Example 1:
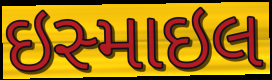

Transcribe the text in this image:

ઇસ્માઇલ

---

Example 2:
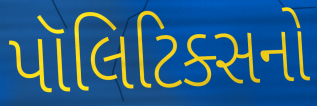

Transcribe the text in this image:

પૉલિટિક્સનો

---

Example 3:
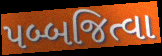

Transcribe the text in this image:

પબ્બજિત્વા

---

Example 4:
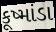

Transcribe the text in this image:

કૂષ્માંડા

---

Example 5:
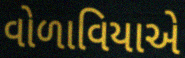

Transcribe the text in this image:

વોળાવિયાએ